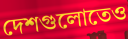
দেশগুলোতেও